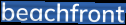
beachfront